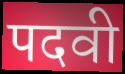
पदवी